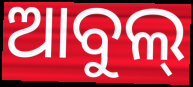
ଆବୁଲ୍